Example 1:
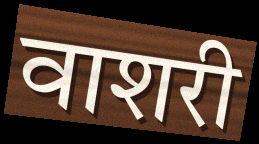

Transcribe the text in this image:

वाशरी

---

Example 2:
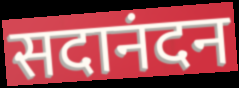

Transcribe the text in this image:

सदानंदन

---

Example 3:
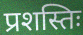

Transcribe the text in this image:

प्रशस्तिः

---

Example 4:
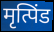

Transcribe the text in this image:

मृत्पिंड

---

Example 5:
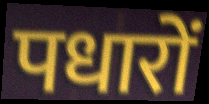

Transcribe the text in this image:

पधारों